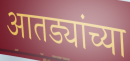
आतड्यांच्या